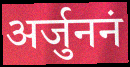
अर्जुननं